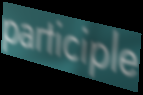
participle